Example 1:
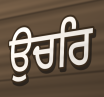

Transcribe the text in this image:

ਉਚਰਿ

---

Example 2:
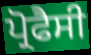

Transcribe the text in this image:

ਪ੍ਰੋਫੈਸੀ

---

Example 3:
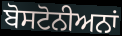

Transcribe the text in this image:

ਬੋਸਟੋਨੀਅਨਾਂ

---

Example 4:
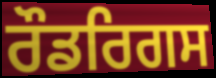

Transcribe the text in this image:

ਰੌਡਰਿਗਸ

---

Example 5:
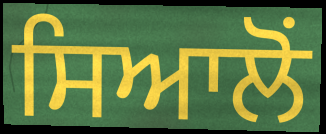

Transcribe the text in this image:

ਸਿਆਲੋਂ